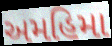
અમહિમા